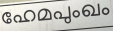
ഹേമപുംഖം